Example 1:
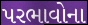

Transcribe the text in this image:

પરભાવોના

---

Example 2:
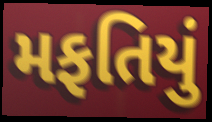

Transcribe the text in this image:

મફતિયું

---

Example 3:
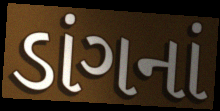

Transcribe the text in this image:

ડાંગનાં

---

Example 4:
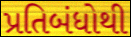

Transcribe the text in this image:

પ્રતિબંધોથી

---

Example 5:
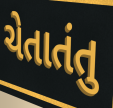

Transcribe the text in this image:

ચેતાતંતુ